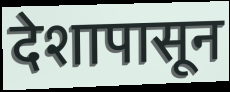
देशापासून